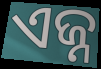
ଏଜ୍ନ